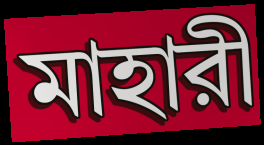
মাহারী